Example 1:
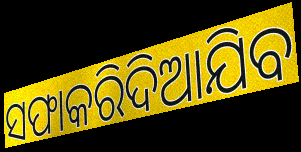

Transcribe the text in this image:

ସଫାକରିଦିଆଯିବ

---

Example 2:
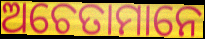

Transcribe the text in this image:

ଅଚେତାମାନେ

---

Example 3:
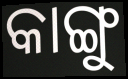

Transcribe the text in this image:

କାଙ୍ଗୁ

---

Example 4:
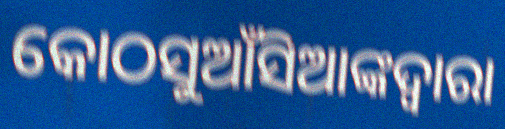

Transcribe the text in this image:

କୋଠସୁଆଁସିଆଙ୍କଦ୍ବାରା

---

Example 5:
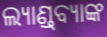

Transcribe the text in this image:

ଲ୍ୟାଣ୍ଡ୍‌ବ୍ୟାଙ୍କ